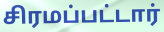
சிரமப்பட்டார்